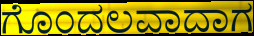
ಗೊಂದಲವಾದಾಗ